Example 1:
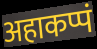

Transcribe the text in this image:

अहाकप्पं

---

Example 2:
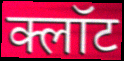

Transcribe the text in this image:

क्‍लॉट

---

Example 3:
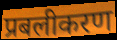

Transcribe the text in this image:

प्रबलीकरण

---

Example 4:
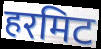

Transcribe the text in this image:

हरमिट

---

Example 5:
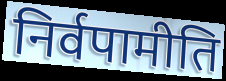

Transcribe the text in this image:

निर्वपामीति